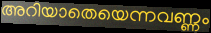
അറിയാതെയെന്നവണ്ണം